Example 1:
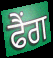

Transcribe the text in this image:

ਫੈਂਗ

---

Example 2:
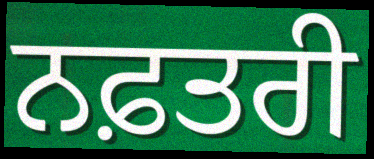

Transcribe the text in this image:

ਨਫ਼ਤਰੀ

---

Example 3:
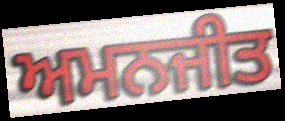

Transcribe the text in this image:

ਅਮਨਜੀਤ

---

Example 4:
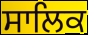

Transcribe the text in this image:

ਸਾਲਿਕ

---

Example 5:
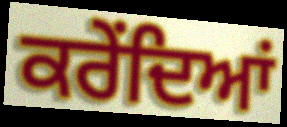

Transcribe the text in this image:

ਕਰੇਂਦਿਆਂ